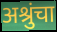
अश्रुंचा